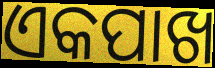
ଏକପାଖ